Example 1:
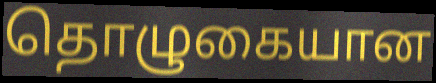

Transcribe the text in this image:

தொழுகையான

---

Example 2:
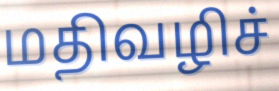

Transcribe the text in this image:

மதிவழிச்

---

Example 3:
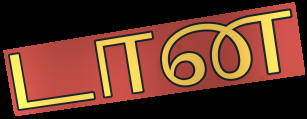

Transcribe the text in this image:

டான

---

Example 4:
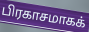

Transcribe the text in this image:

பிரகாசமாகக்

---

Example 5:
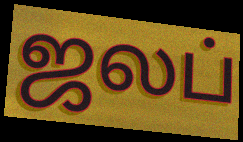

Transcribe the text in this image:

ஜலப்